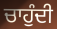
ਚਾਹੁੰਦੀ